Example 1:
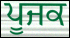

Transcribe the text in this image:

ਪੂਜਕ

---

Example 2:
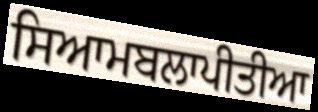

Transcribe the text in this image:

ਸਿਆਮਬਲਾਪੀਤੀਆ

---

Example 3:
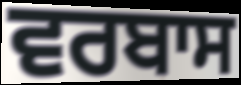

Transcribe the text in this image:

ਵਰਬਾਸ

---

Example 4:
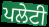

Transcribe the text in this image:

ਪਲੇਟੀ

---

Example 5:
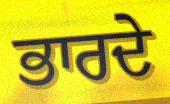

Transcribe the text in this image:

ਭਾਰਦੇ